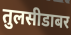
तुलसीडाबर